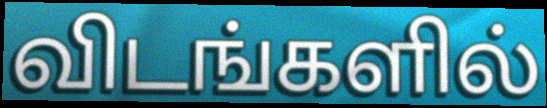
விடங்களில்